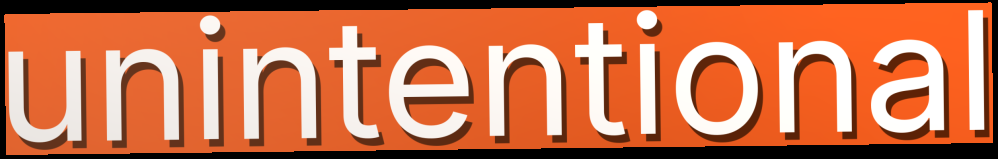
unintentional